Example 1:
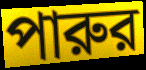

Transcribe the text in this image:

পারুর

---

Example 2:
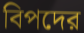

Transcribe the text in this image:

বিপদের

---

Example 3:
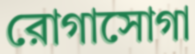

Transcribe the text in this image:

রোগাসোগা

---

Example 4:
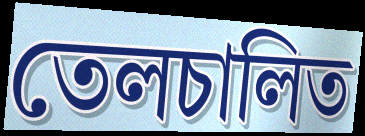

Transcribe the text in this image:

তেলচালিত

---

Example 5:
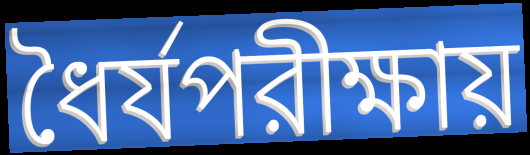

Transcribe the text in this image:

ধৈর্যপরীক্ষায়